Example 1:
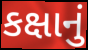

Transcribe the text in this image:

કક્ષાનું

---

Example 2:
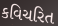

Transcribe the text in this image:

કવિચરિત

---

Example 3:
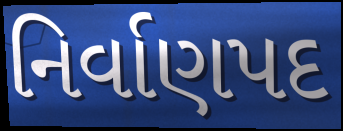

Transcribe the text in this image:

નિર્વાણપદ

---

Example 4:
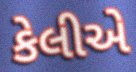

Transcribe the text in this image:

કેલીએ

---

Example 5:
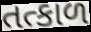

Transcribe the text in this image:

તત્કાળ